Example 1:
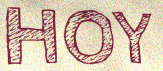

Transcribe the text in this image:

HOY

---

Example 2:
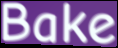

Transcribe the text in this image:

Bake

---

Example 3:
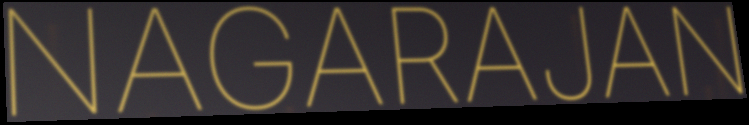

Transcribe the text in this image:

NAGARAJAN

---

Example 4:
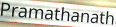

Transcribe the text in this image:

Pramathanath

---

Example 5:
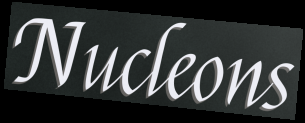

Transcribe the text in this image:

Nucleons